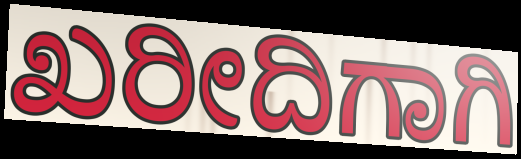
ಖರೀದಿಗಾಗಿ